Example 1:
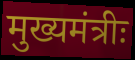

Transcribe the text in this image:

मुख्यमंत्रीः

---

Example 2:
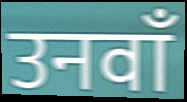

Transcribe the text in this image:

उनवाँ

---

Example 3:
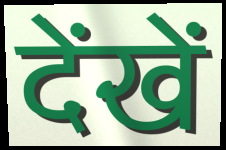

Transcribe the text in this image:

देंखें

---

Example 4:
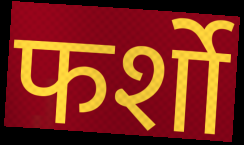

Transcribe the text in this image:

फर्शो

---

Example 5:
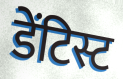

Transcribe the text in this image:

डेंटिस्ट